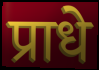
प्राधे